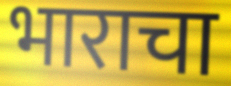
भाराचा